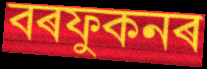
বৰফুকনৰ